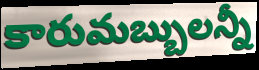
కారుమబ్బులన్నీ